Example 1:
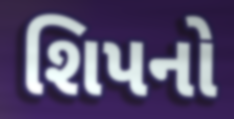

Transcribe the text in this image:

શિપનો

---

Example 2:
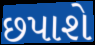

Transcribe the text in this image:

છપાશે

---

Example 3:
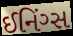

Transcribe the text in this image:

ઈનિંગ્સ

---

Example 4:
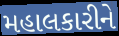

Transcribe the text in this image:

મહાલકારીને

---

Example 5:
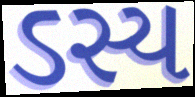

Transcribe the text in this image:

ઽસ્ય